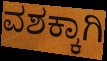
ವಶಕ್ಕಾಗಿ